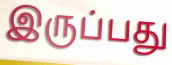
இருப்பது